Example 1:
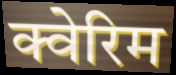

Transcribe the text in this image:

क्वेरिम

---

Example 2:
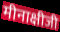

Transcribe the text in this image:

मीनाक्षीजी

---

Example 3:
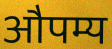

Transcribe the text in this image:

औपम्य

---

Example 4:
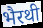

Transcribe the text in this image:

भैरथी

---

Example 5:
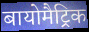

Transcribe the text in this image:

बायोमैट्रिक